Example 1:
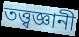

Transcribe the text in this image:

তত্ত্বজ্ঞানী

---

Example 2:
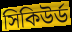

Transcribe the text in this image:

সিকিউর্ড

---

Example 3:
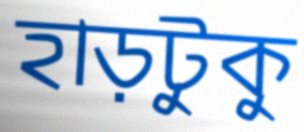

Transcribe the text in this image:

হাড়টুকু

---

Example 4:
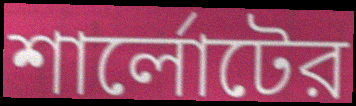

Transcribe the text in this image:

শার্লোটের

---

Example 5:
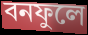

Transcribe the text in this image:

বনফুলে